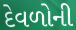
દેવળોની